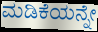
ಮಡಿಕೆಯನ್ನೇ